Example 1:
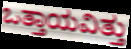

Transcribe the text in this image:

ಒತ್ತಾಯವಿತ್ತು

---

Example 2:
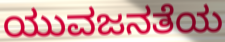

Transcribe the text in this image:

ಯುವಜನತೆಯ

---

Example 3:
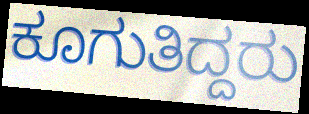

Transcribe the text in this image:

ಕೂಗುತಿದ್ದರು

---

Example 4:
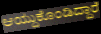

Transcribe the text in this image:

ಆಯ್ದುಕೊಂಡಿದ್ದಾರೆ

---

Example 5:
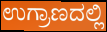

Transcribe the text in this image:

ಉಗ್ರಾಣದಲ್ಲಿ